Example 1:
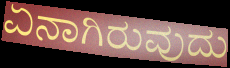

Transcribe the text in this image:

ಏನಾಗಿರುವುದು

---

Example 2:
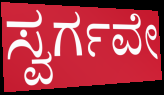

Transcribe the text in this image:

ಸ್ವರ್ಗವೇ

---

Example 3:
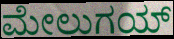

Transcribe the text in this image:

ಮೇಲುಗಯ್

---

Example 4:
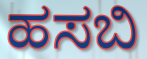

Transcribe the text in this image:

ಹಸಬಿ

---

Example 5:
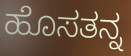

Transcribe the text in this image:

ಹೊಸತನ್ನ